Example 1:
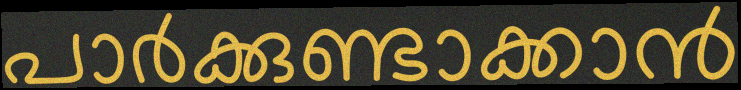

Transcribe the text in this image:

പാർക്കുണ്ടാക്കാൻ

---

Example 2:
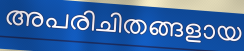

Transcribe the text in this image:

അപരിചിതങ്ങളായ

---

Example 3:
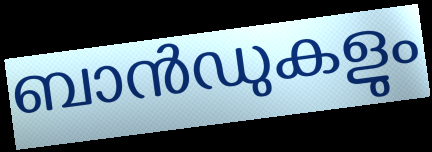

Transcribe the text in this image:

ബാൻഡുകളും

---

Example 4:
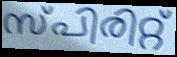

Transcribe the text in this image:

സ്പിരിറ്റ്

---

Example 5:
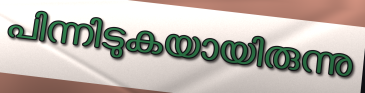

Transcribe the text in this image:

പിന്നിടുകയായിരുന്നു